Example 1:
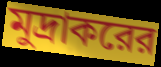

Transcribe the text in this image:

মুদ্রাকরের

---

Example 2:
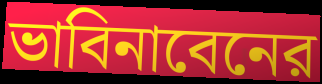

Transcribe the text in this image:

ভাবিনাবেনের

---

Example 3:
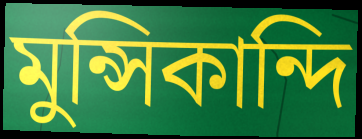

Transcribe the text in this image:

মুন্সিকান্দি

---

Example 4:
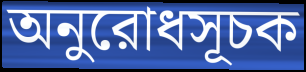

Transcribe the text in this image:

অনুরোধসূচক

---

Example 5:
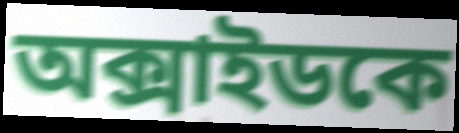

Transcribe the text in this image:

অক্সাইডকে